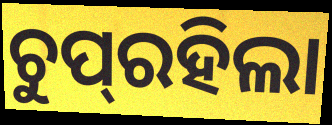
ଚୁପ୍‌ରହିଲା